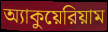
অ্যাকুয়েরিয়াম